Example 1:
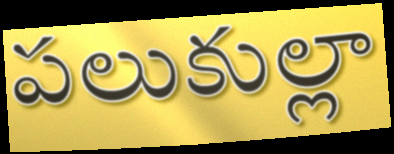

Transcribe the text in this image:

పలుకుల్లా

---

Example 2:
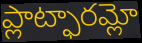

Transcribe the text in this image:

ప్లాట్ఫారమ్లో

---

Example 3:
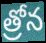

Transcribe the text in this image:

త్రోన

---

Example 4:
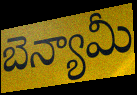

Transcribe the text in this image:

బెన్యామీ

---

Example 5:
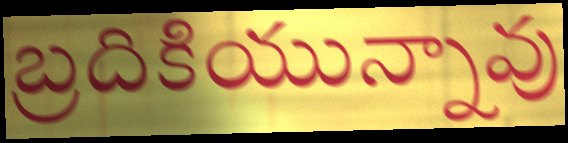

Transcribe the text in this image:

బ్రదికియున్నావు